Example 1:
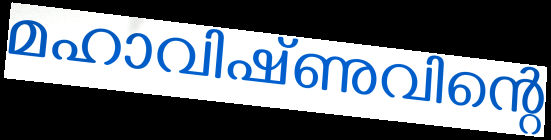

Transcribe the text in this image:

മഹാവിഷ്‌ണുവിന്റെ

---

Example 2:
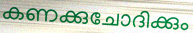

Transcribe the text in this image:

കണക്കുചോദിക്കും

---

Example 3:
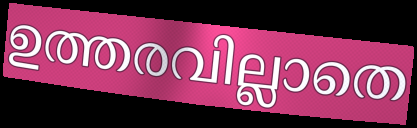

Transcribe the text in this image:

ഉത്തരവില്ലാതെ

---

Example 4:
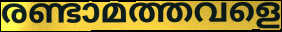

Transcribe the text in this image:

രണ്ടാമത്തവളെ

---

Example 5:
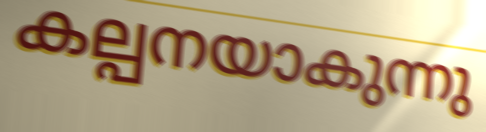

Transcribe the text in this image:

കല്പനയാകുന്നു